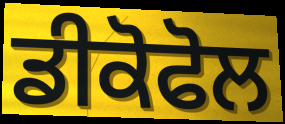
ਡੀਕੋਫੋਲ